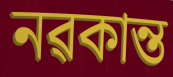
নৱকান্ত